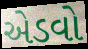
એડવો